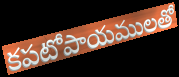
కపటోపాయములతో